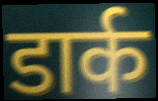
डार्क